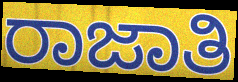
ರಾಜಾತಿ